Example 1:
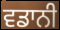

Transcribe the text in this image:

ਵਡਾਨੀ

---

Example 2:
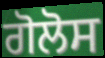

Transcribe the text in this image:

ਗੋਲੋਸ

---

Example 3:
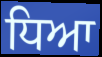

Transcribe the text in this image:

ਧਿਆ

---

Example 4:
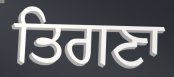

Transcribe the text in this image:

ਤਿਗਣਾ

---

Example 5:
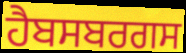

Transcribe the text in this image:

ਹੈਬਸਬਰਗਸ